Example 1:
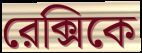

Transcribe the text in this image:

রেক্সিকে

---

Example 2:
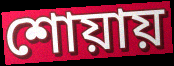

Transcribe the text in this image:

শোয়ায়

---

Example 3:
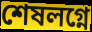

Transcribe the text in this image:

শেষলগ্নে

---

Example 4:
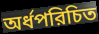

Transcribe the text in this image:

অর্ধপরিচিত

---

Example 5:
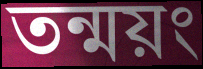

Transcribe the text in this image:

তন্ময়ং